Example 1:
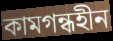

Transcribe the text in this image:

কামগন্ধহীন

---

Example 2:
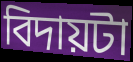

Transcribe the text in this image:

বিদায়টা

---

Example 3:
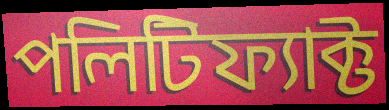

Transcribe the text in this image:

পলিটিফ্যাক্ট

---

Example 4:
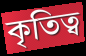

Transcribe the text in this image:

কৃতিত্ব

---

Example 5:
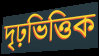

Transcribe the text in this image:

দৃঢ়ভিত্তিক